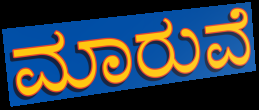
ಮಾರುವೆ